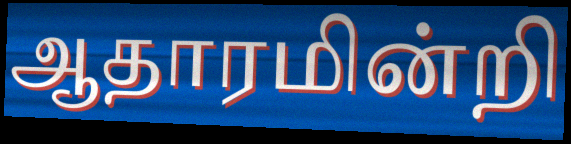
ஆதாரமின்றி